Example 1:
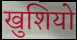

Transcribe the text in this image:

खुशियो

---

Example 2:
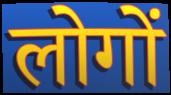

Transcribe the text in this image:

लोगों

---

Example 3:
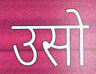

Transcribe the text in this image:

उसो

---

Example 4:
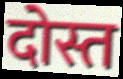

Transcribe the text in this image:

दोस्त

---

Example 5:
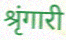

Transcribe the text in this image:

श्रृंगारी